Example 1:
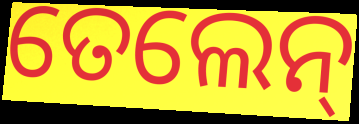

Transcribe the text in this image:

ତେଲେନ୍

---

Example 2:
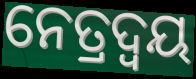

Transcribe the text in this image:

ନେତ୍ରଦ୍ଵୟ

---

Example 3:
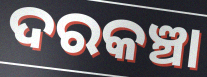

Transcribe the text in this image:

ଦରକଞ୍ଚା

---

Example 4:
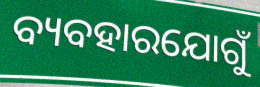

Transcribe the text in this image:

ବ୍ୟବହାରଯୋଗୁଁ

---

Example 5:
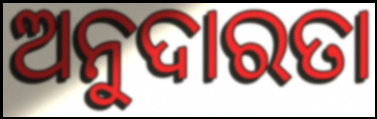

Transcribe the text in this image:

ଅନୁଦାରତା